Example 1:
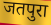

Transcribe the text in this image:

जतपुरा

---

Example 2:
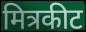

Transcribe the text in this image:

मित्रकीट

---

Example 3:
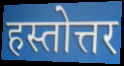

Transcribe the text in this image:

हस्तोत्तर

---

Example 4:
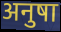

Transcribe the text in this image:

अनुषा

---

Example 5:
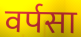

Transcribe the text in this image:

वर्पसा